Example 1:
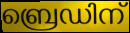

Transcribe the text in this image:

ബ്രെഡിന്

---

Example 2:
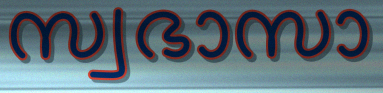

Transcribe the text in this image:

സ്വഭാസാ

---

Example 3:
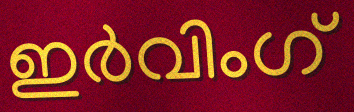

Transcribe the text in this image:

ഇർവിംഗ്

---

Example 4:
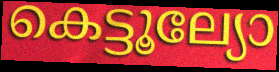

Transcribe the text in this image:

കെട്ടൂല്യോ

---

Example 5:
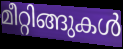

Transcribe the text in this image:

മീറ്റിങ്ങുകൾ